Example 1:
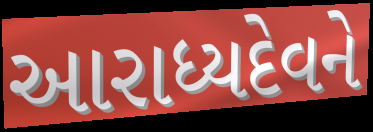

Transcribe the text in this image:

આરાધ્યદેવને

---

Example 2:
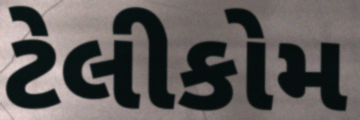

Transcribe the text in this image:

ટેલીકોમ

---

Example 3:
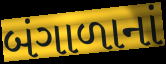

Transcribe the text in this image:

બંગાળાનાં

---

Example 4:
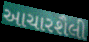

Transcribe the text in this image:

આચારશૈલી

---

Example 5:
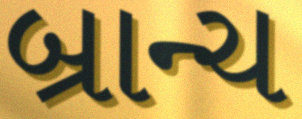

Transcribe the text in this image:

બ્રાન્ચ